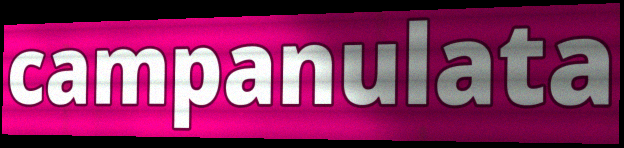
campanulata